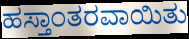
ಹಸ್ತಾಂತರವಾಯಿತು